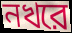
নখরে